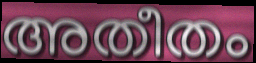
അതീതം